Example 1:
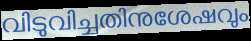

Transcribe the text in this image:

വിടുവിച്ചതിനുശേഷവും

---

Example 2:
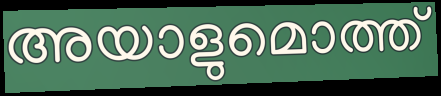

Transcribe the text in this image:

അയാളുമൊത്ത്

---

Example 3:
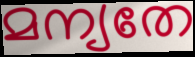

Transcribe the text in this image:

മന്യതേ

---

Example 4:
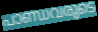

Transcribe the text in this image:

പാണ്ഡവരുടെ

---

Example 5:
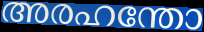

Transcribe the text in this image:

അരഹന്തോ